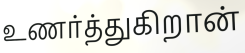
உணர்த்துகிறான்